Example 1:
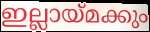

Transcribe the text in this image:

ഇല്ലായ്മക്കും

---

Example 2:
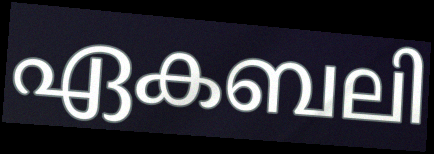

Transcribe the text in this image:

ഏകബലി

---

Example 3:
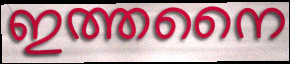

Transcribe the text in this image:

ഇത്തനൈ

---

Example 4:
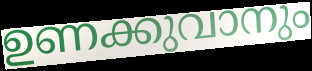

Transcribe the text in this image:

ഉണക്കുവാനും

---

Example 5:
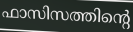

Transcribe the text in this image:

ഫാസിസത്തിന്റെ